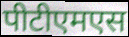
पीटीएमएस